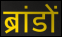
ब्रांडों